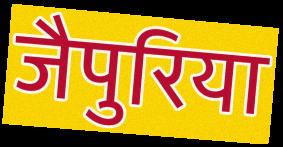
जैपुरिया